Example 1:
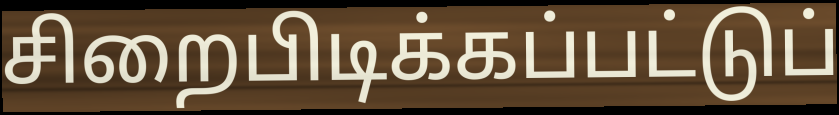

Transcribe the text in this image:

சிறைபிடிக்கப்பட்டுப்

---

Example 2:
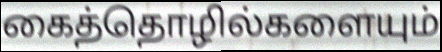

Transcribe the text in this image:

கைத்தொழில்களையும்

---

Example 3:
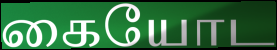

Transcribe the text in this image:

கையோட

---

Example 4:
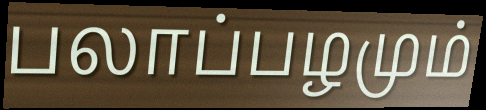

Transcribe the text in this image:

பலாப்பழமும்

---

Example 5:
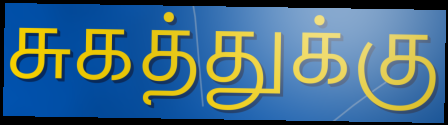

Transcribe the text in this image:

சுகத்துக்கு